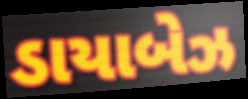
ડાયાબેઝ